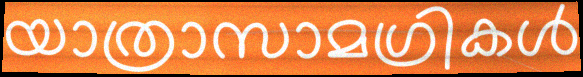
യാത്രാസാമഗ്രികൾ